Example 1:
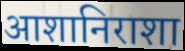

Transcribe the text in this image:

आशानिराशा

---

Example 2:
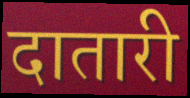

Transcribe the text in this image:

दातारी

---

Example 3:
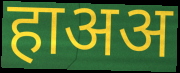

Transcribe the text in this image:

हाअअ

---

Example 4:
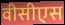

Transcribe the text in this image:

वीसीएस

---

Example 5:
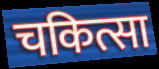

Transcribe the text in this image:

चकित्सा